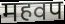
महवप